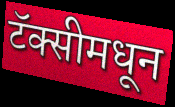
टॅक्सीमधून